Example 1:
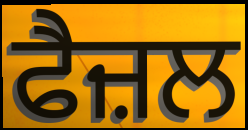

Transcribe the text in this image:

ਫੈਜ਼ਲ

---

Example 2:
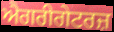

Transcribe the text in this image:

ਐਗਰੀਗੇਟਰਜ਼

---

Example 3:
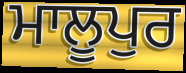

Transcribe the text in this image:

ਮਾਲੂਪੁਰ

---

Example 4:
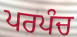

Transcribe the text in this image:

ਪਰਪੰਚ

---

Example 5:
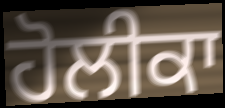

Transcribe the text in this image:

ਹੋਲੀਕਾ